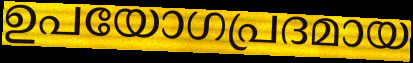
ഉപയോഗപ്രദമായ